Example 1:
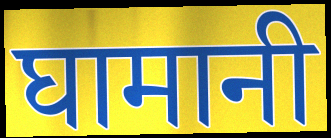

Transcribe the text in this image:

घामानी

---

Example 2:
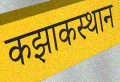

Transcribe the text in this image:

कझाकस्थान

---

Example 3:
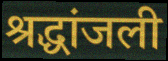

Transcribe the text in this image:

श्रद्धांजली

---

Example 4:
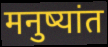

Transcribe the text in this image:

मनुष्यांत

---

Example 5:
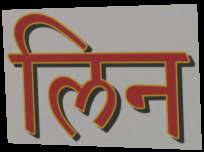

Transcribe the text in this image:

लिन